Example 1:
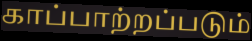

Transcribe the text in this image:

காப்பாற்றப்படும்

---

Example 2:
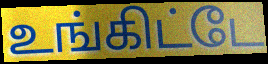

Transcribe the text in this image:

உங்கிட்டே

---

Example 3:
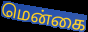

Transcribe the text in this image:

மென்கை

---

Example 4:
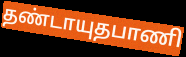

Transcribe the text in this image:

தண்டாயுதபாணி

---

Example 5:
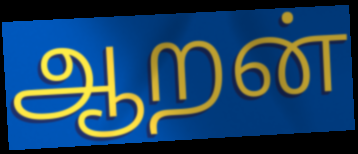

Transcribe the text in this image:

ஆறன்